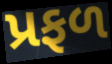
પ્રફળ